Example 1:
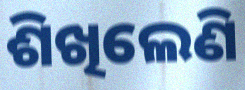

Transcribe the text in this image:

ଶିଖିଲେଣି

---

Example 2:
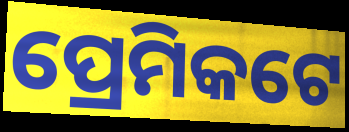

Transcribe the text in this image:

ପ୍ରେମିକଟେ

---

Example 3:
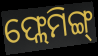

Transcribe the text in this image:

ଫ୍ଲେମିଙ୍ଗ୍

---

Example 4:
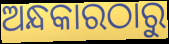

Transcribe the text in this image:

ଅନ୍ଧକାରଠାରୁ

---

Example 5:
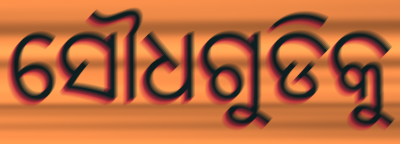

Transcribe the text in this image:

ସୌଧଗୁଡିକୁ